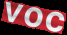
voc